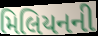
મિલિયનની